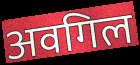
अवगिल